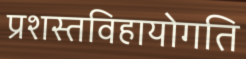
प्रशस्तविहायोगति